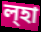
ল্হা